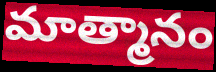
మాత్మానం